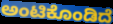
ಅಂಟಿಕೊಂಡಿದೆ